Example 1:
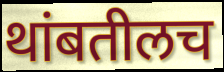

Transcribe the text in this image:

थांबतीलच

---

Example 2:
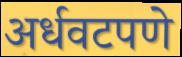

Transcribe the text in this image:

अर्धवटपणे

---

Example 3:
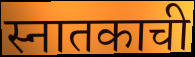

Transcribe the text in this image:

स्नातकाची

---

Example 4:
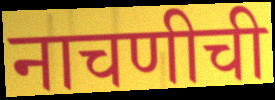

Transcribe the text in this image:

नाचणीची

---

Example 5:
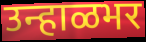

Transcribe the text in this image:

उन्हाळभर